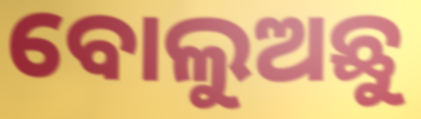
ବୋଲୁଅଛୁ